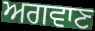
ਅਗਵਾਣ